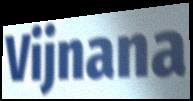
Vijnana